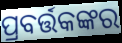
ପ୍ରବର୍ତ୍ତକଙ୍କର